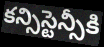
కన్సిస్టెన్సీకి